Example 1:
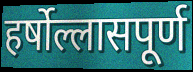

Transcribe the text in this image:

हर्षोल्लासपूर्ण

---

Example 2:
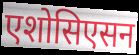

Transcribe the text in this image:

एशोसिएसन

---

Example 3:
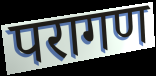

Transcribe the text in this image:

परागण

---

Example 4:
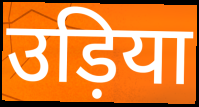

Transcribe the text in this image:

उड़िया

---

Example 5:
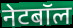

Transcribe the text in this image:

नेटबॉल